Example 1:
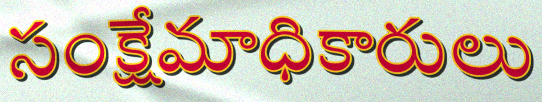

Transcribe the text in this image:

సంక్షేమాధికారులు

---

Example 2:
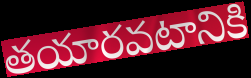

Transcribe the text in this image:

తయారవటానికి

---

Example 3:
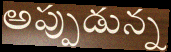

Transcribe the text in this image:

అప్పుడున్న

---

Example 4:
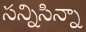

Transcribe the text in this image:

సన్నిసిన్నా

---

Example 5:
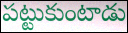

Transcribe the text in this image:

పట్టుకుంటాడు